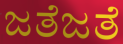
ಜತೆಜತೆ